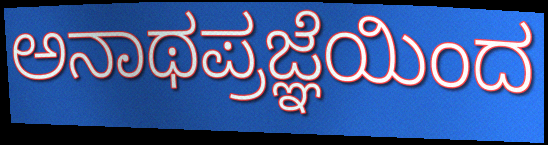
ಅನಾಥಪ್ರಜ್ಞೆಯಿಂದ